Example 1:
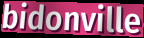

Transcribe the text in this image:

bidonville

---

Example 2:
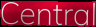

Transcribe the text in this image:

Central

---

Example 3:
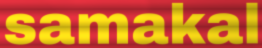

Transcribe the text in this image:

samakal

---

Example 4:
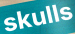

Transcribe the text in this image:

skulls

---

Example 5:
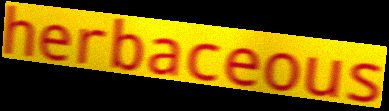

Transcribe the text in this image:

herbaceous